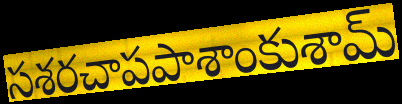
సశరచాపపాశాంకుశామ్